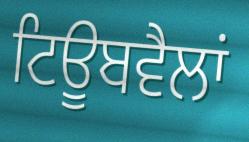
ਟਿਊਬਵੈਲਾਂ